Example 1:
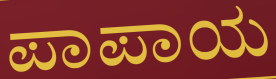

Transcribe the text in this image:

ಪಾಪಾಯ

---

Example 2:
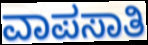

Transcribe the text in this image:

ವಾಪಸಾತಿ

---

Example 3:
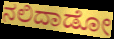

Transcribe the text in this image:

ನಲಿದಾಡೋ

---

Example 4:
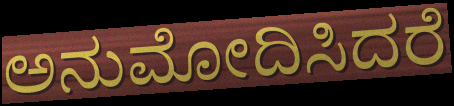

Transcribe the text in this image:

ಅನುಮೋದಿಸಿದರೆ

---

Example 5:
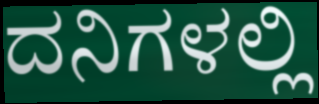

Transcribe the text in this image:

ದನಿಗಳಲ್ಲಿ